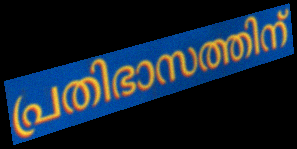
പ്രതിഭാസത്തിന്